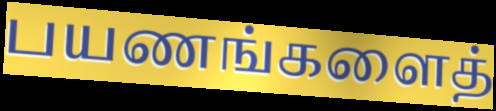
பயணங்களைத்